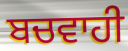
ਬਚਵਾਹੀ